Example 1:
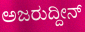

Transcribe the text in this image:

ಅಜರುದ್ದೀನ್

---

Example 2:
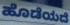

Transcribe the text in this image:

ಹೊಡೆಯದೆ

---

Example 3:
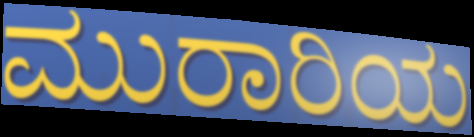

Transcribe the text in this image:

ಮುರಾರಿಯ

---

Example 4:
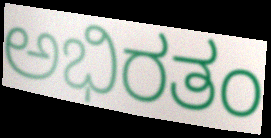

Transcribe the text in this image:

ಅಭಿರತಂ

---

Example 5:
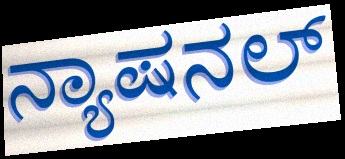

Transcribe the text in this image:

ನ್ಯಾಷನಲ್